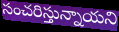
సంచరిస్తున్నాయని